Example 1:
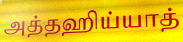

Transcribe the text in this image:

அத்தஹிய்யாத்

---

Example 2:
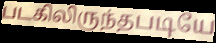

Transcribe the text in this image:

படகிலிருந்தபடியே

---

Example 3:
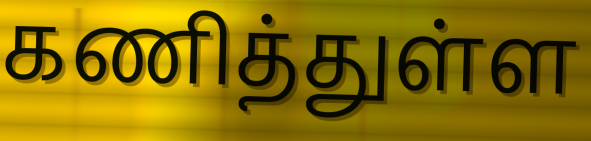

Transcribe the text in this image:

கணித்துள்ள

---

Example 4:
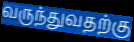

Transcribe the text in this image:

வருந்துவதற்கு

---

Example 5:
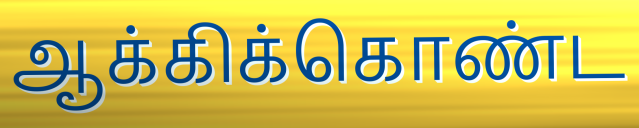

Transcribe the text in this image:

ஆக்கிக்கொண்ட